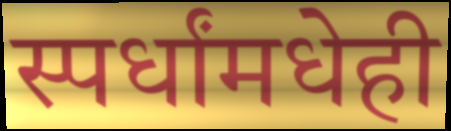
स्पर्धांमधेही